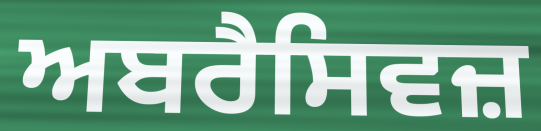
ਅਬਰੈਸਿਵਜ਼